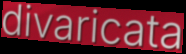
divaricata